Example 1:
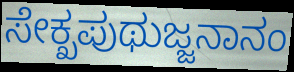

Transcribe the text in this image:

ಸೇಕ್ಖಪುಥುಜ್ಜನಾನಂ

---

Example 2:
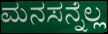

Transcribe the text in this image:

ಮನಸನ್ನೆಲ್ಲ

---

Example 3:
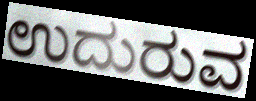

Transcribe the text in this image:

ಉದುರುವ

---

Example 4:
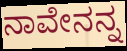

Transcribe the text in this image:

ನಾವೇನನ್ನ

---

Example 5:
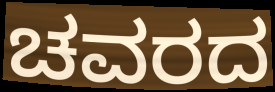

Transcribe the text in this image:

ಚವರದ